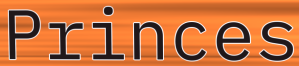
Princes